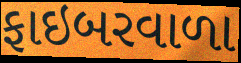
ફાઇબરવાળા